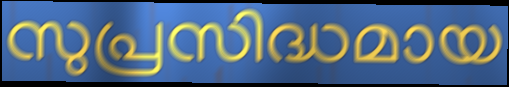
സുപ്രസിദ്ധമായ